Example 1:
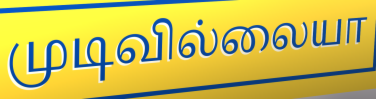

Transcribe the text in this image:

முடிவில்லையா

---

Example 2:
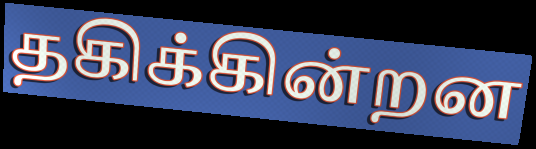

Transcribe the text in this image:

தகிக்கின்றன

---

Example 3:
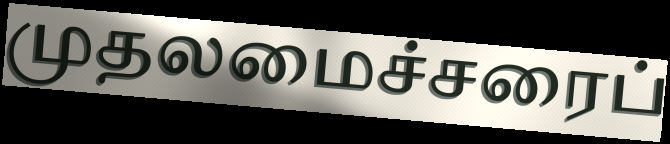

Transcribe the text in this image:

முதலமைச்சரைப்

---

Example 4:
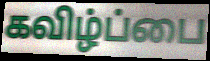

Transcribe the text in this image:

கவிழ்ப்பை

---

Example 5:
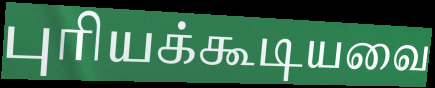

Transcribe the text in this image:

புரியக்கூடியவை